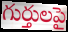
గుర్తులపై